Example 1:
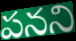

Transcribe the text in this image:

పనని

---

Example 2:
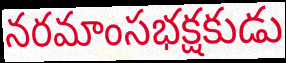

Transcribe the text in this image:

నరమాంసభక్షకుడు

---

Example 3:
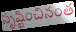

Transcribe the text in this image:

సృష్టించినంత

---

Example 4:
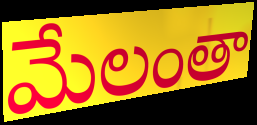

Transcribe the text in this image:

మేలంతా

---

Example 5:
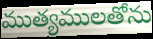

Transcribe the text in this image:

ముత్యములతోను